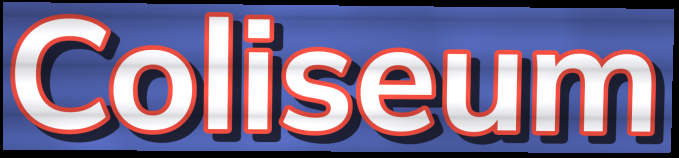
Coliseum